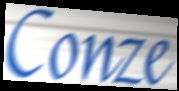
Conze